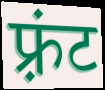
फ़्रंट